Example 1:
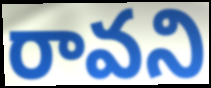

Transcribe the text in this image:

రావని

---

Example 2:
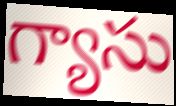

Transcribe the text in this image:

గ్యాసు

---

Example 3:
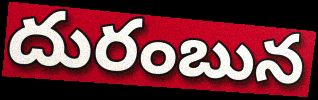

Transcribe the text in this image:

దురంబున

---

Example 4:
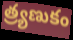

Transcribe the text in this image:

త్ర్యణుకం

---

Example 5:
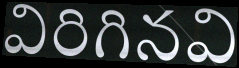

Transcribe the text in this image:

విరిగినవి